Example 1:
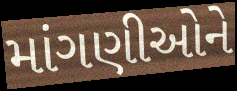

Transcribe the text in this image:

માંગણીઓને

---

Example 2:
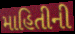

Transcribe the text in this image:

માહિતીની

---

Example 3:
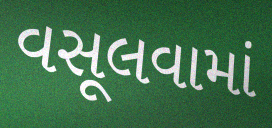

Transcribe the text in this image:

વસૂલવામાં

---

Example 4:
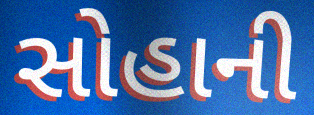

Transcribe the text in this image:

સોહાની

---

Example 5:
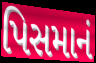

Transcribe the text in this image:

પિસમાનં